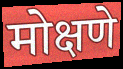
मोक्षणे